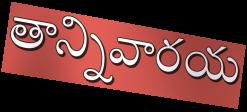
తాన్నివారయ